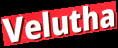
Velutha